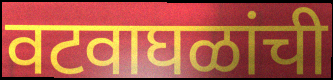
वटवाघळांची